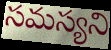
సమస్యని